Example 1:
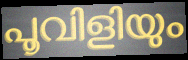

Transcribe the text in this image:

പൂവിളിയും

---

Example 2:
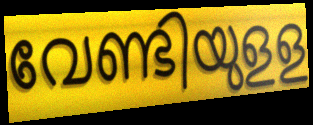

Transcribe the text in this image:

വേണ്ടിയുളള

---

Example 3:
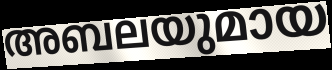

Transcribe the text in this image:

അബലയുമായ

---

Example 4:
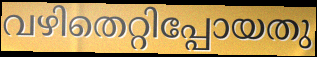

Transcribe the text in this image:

വഴിതെറ്റിപ്പോയതു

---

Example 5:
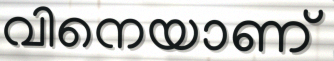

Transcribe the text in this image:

വിനെയാണ്